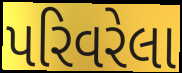
પરિવરેલા